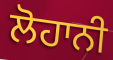
ਲੋਹਾਨੀ